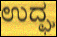
ಉದ್ಘ